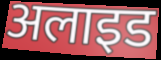
अलाइड